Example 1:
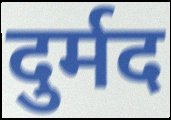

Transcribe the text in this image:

दुर्मद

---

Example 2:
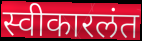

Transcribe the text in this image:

स्वीकारलंत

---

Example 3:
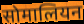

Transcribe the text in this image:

सोमालियन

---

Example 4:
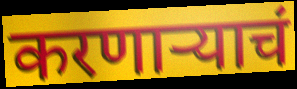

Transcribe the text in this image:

करणाऱ्याचं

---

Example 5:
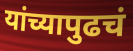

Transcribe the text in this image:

यांच्यापुढचं